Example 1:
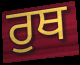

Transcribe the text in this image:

ਰੁਥ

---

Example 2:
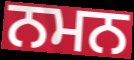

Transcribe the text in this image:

ਨਮਨ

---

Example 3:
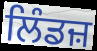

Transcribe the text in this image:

ਲਿੰਡਜ਼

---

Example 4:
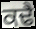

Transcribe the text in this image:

ਕਢੈ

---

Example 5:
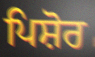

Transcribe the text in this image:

ਪਿਸ਼ੋਰ